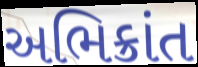
અભિક્રાંત